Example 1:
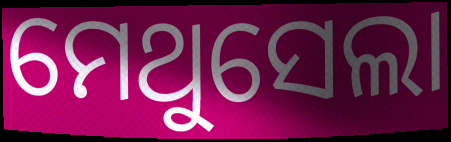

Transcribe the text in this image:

ମେଥୁସେଲା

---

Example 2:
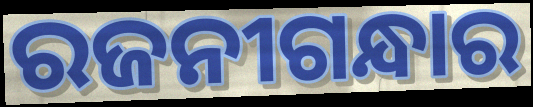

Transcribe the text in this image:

ରଜନୀଗନ୍ଧାର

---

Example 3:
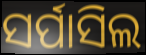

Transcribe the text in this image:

ସର୍ପାସିଲ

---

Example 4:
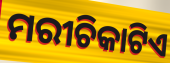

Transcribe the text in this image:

ମରୀଚିକାଟିଏ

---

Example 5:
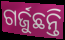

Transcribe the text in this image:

ଗର୍ଜୁଛନ୍ତି